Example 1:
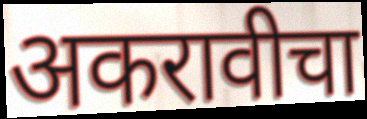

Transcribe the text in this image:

अकरावीचा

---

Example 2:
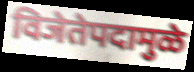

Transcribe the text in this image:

विजेतेपदामुळे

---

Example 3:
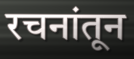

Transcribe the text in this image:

रचनांतून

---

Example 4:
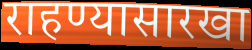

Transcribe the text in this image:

राहण्यासारखा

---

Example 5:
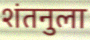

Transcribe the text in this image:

शंतनुला